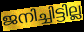
ജനിച്ചിട്ടില്ല